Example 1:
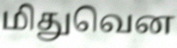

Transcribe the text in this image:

மிதுவென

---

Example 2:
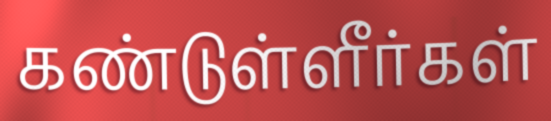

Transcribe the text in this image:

கண்டுள்ளீர்கள்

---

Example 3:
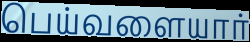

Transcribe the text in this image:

பெய்வளையார்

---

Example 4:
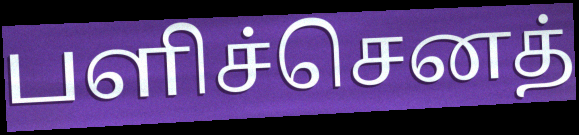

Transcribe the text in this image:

பளிச்செனத்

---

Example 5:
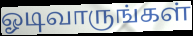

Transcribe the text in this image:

ஓடிவாருங்கள்